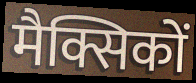
मैक्सिकों